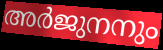
അർജുനനും